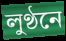
লুণ্ঠনে